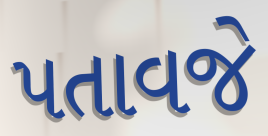
પતાવજે